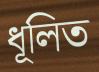
ধূলিত